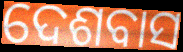
ଦେଶବାସ